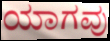
ಯಾಗವು